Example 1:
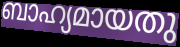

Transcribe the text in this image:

ബാഹ്യമായതു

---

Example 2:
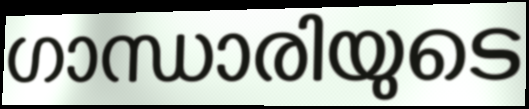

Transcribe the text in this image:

ഗാന്ധാരിയുടെ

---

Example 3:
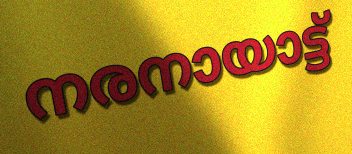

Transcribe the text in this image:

നരനായാട്ട്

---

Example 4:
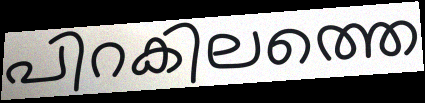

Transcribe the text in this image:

പിറകിലത്തെ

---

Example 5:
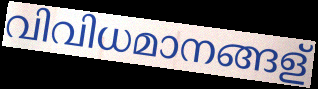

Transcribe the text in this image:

വിവിധമാനങ്ങള്